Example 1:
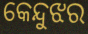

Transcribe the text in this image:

କେନ୍ଦୁଝର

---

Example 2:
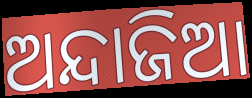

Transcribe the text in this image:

ଅନ୍ଦାଜିଆ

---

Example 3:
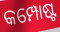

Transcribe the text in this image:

କମ୍ପୋଷ୍ଟ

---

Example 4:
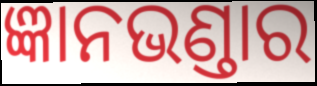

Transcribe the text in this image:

ଜ୍ଞାନଭଣ୍ଡାର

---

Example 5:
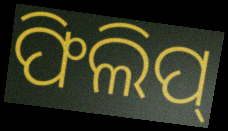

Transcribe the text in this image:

ଫିଲିପ୍